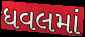
ધવલમાં